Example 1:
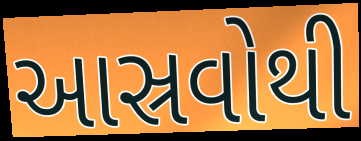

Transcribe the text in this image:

આસ્રવોથી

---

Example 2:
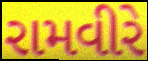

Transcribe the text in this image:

રામવીરે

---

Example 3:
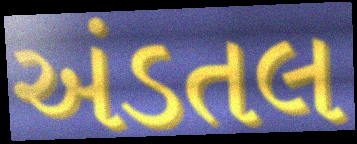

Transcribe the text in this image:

અંડતલ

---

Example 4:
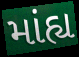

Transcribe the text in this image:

માંહ્ય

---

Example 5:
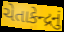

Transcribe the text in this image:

ચેતાકેન્દ્રનું